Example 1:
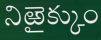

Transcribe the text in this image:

నిఱైక్కుం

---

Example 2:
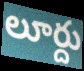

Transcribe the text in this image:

లూర్దు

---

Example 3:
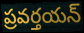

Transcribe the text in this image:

ప్రవర్తయన్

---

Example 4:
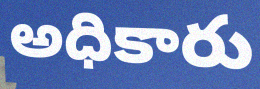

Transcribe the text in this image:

అధికారు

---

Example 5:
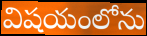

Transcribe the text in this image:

విషయంలోను